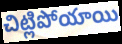
చిట్లిపోయాయి